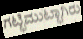
ಗಟ್ಟಿಮುಟ್ಟಾಗಿರು